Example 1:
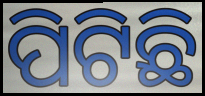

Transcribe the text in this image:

ପିଟିଛି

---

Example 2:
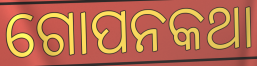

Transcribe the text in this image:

ଗୋପନକଥା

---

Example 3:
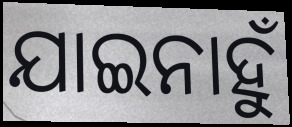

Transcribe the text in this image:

ଯାଇନାହୁଁ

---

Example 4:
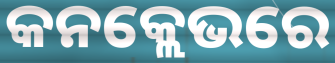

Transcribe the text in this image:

କନକ୍ଲେଭରେ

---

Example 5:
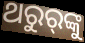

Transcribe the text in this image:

ଥରୁର୍‌ଙ୍କୁ